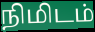
நிமிடம்